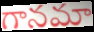
గానమా